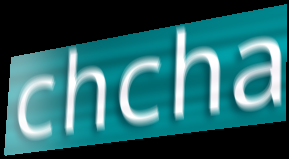
chcha